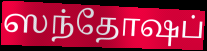
ஸந்தோஷப்